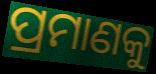
ପ୍ରମାଣକୁ